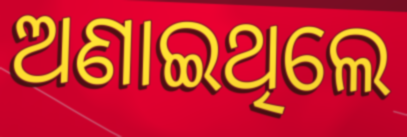
ଅଣାଇଥିଲେ